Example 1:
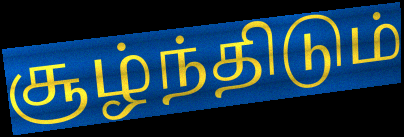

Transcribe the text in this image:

சூழ்ந்திடும்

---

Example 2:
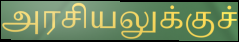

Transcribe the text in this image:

அரசியலுக்குச்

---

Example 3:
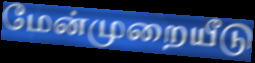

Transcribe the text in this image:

மேன்முறையீடு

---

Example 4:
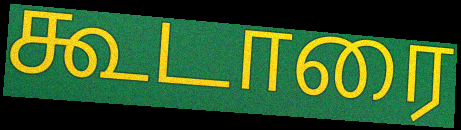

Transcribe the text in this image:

கூடாரை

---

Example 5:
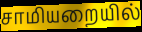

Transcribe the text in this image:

சாமியறையில்